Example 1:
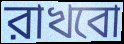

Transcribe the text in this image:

রাখবো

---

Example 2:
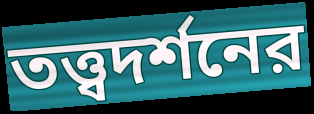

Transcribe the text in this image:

তত্ত্বদর্শনের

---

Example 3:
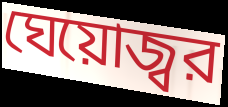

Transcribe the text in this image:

ঘেয়োজ্বর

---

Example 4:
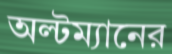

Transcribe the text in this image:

অল্টম্যানের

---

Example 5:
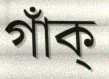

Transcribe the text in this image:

গাঁক্